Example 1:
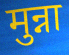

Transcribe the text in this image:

मुन्ना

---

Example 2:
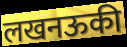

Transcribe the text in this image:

लखनऊकी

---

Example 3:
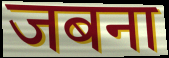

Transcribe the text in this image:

जबना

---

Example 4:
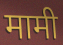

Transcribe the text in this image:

मामी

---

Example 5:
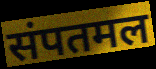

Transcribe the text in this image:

संपतमल